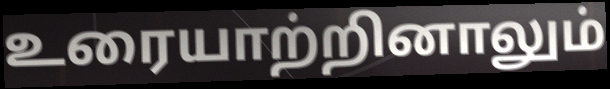
உரையாற்றினாலும்